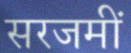
सरजमीं